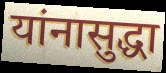
यांनासुद्धा